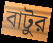
বাটুর